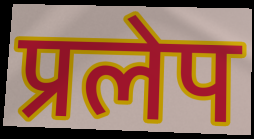
प्रलेप